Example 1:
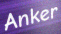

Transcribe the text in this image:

Anker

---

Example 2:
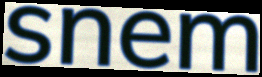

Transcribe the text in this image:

snem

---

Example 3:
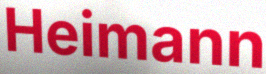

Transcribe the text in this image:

Heimann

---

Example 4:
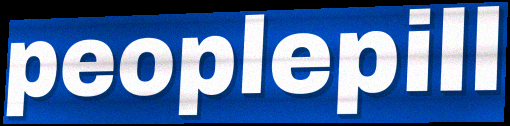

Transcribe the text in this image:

peoplepill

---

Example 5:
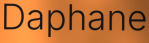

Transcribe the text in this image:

Daphane